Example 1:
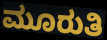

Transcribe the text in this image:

ಮೂರುತಿ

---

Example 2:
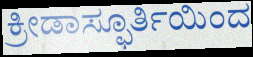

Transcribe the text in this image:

ಕ್ರೀಡಾಸ್ಫೂರ್ತಿಯಿಂದ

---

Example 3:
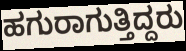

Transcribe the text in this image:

ಹಗುರಾಗುತ್ತಿದ್ದರು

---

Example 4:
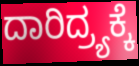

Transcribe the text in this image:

ದಾರಿದ್ರ್ಯಕ್ಕೆ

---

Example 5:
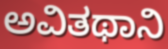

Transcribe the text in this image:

ಅವಿತಥಾನಿ